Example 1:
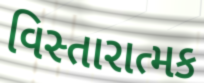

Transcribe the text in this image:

વિસ્તારાત્મક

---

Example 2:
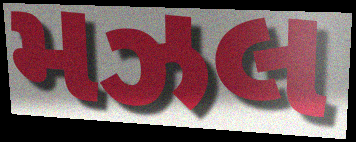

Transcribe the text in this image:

મઝલ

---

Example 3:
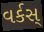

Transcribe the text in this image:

વર્કસ્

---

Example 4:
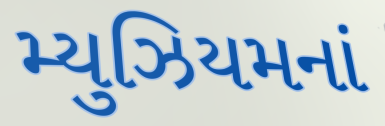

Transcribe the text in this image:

મ્યુઝિયમનાં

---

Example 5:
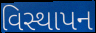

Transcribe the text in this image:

વિસ્થાપન